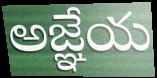
అజ్ఞేయ